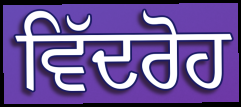
ਵਿੱਦਰੋਹ